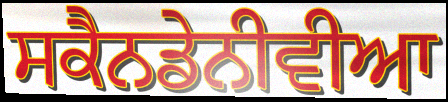
ਸਕੈਨਡੇਨੀਵੀਆ